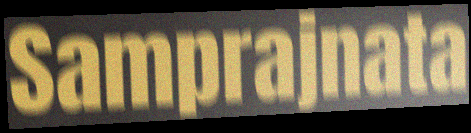
Samprajnata